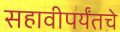
सहावीपर्यंतचे